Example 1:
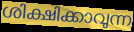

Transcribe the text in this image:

ശിക്ഷിക്കാവുന്ന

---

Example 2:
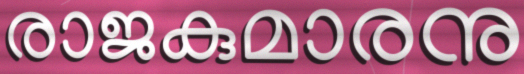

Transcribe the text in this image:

രാജകുമാരനു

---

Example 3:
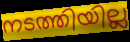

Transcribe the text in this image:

നടത്തിയില്ല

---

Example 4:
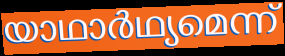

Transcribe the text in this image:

യാഥാർഥ്യമെന്ന്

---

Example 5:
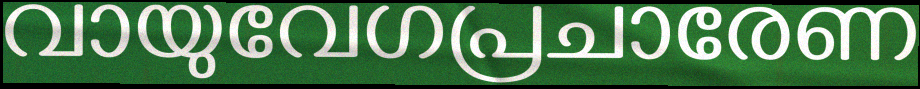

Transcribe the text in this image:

വായുവേഗപ്രചാരേണ